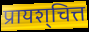
प्रायश्चित्त